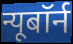
न्यूबॉर्न